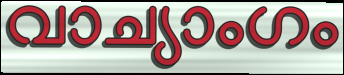
വാച്യാംഗം